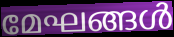
മേഘങ്ങൾ